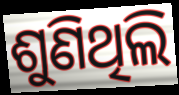
ଶୁଣିଥିଲି